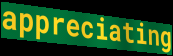
appreciating